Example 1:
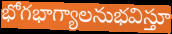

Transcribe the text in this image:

భోగభాగ్యాలనుభవిస్తూ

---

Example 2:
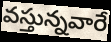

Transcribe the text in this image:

వస్తున్నవారే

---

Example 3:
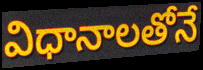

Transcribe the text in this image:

విధానాలతోనే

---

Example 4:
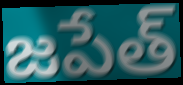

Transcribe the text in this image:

జపేత్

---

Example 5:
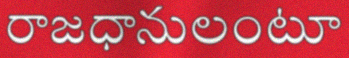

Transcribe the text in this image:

రాజధానులంటూ